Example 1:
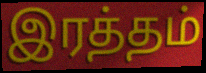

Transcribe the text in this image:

இரத்தம்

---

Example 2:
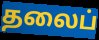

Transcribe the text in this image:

தலைப்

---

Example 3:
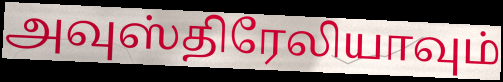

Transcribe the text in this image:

அவுஸ்திரேலியாவும்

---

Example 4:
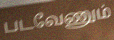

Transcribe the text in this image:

படவேணும்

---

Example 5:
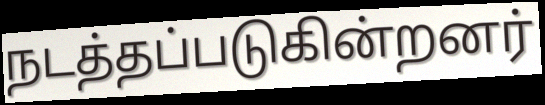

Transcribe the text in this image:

நடத்தப்படுகின்றனர்